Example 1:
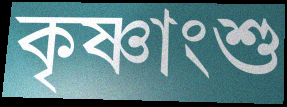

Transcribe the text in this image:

কৃষ্ণাংশু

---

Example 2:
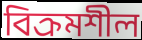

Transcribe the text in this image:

বিক্রমশীল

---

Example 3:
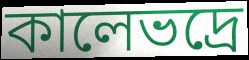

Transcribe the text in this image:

কালেভদ্রে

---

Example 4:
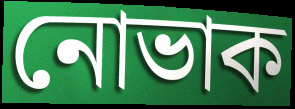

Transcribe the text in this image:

নোভাক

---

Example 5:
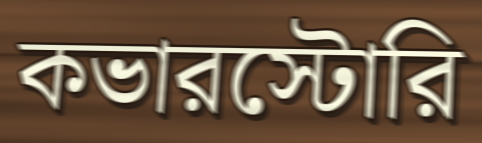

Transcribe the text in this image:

কভারস্টোরি